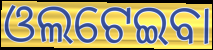
ଓଲଟେଇବା